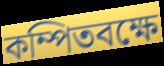
কম্পিতবক্ষে